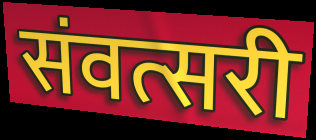
संवत्सरी